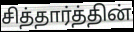
சித்தார்த்தின்